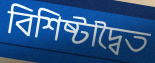
বিশিষ্টাদ্বৈত